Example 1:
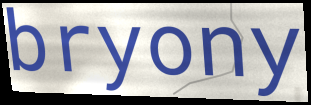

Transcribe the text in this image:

bryony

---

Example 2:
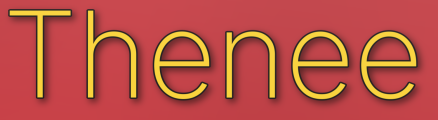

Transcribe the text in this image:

Thenee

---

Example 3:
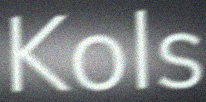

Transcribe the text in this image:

Kols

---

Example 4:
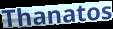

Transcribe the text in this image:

Thanatos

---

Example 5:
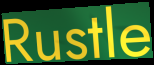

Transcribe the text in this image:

Rustle